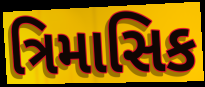
ત્રિમાસિક